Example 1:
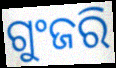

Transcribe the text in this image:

ଗୁଂଜରି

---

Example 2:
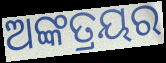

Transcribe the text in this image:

ଅଙ୍କତ୍ରୟର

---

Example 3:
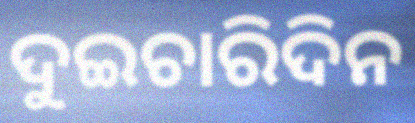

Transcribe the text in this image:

ଦୁଇଚାରିଦିନ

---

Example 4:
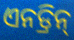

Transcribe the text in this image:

ଏନଡ୍ରିନ୍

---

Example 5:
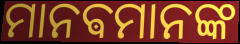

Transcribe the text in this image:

ମାନଵମାନଙ୍କ